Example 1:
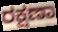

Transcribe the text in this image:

ರಕ್ಷಣಾ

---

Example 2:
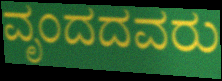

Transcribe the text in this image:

ವೃಂದದವರು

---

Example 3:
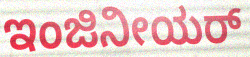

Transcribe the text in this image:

ಇಂಜಿನೀಯರ್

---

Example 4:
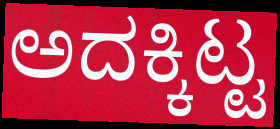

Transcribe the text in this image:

ಅದಕ್ಕಿಟ್ಟ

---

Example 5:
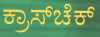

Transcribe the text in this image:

ಕ್ರಾಸ್‌ಚೆಕ್